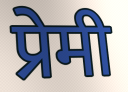
प्रेमी